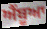
ਐਂਬੂਆ